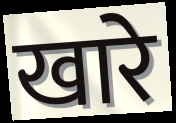
खारे